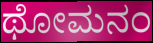
ಥೋಮನಂ